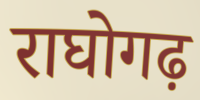
राघोगढ़